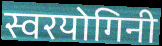
स्वरयोगिनी